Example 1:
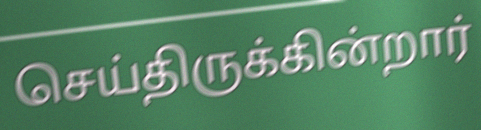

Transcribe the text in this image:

செய்திருக்கின்றார்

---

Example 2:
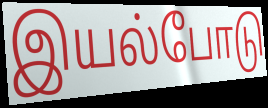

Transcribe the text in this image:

இயல்போடு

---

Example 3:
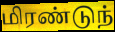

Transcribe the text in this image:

மிரண்டுந்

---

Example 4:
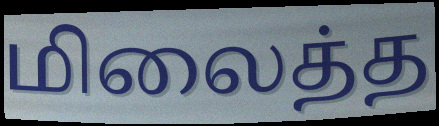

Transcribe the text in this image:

மிலைத்த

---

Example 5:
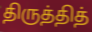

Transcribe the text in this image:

திருத்தித்